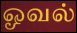
ஓவல்